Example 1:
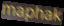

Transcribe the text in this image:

maphak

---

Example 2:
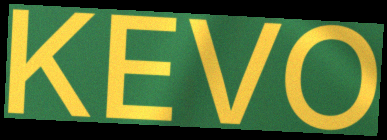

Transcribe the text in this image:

KEVO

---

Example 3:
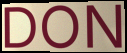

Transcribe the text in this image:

DON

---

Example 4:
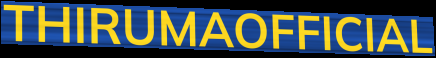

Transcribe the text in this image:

THIRUMAOFFICIAL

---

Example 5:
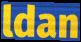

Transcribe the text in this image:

ldan